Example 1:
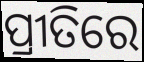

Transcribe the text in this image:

ପ୍ରୀତିରେ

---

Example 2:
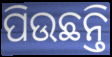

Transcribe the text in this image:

ପିଉଛନ୍ତି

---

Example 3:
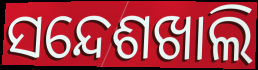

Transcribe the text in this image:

ସନ୍ଦେଶଖାଲି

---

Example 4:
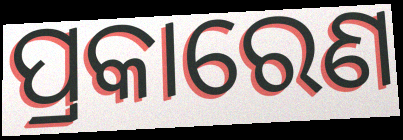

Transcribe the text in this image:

ପ୍ରକାରେଣ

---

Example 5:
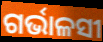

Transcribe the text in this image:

ଗର୍ଭାଳସୀ